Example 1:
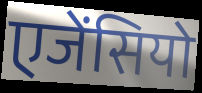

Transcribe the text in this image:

एजेंसियो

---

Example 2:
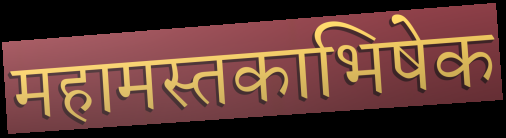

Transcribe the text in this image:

महामस्तकाभिषेक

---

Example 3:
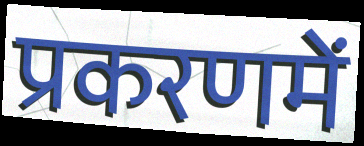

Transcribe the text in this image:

प्रकरणमें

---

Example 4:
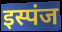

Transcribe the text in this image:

इस्पंज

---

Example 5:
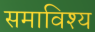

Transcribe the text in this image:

समाविश्य